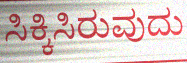
ಸಿಕ್ಕಿಸಿರುವುದು